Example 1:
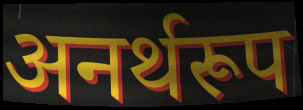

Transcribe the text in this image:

अनर्थरूप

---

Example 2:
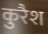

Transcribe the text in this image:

कुरैश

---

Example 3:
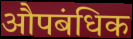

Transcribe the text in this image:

औपबंधिक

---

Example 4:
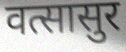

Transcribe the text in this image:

वत्सासुर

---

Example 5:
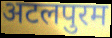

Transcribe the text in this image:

अटलपुरम